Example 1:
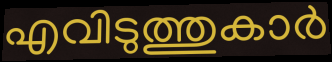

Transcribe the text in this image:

എവിടുത്തുകാർ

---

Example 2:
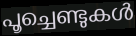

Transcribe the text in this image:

പൂച്ചെണ്ടുകൾ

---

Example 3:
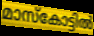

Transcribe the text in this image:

മാസ്കോട്ടിൽ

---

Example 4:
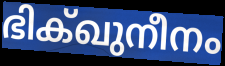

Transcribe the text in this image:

ഭിക്ഖുനീനം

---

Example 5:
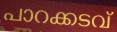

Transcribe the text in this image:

പാറക്കടവ്